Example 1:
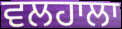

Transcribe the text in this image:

ਵਲਹਾਲਾ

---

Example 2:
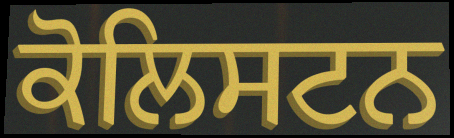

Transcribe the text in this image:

ਕੋਲਿਸਟਨ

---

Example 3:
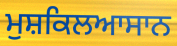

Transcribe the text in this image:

ਮੁਸ਼ਕਿਲਆਸਾਨ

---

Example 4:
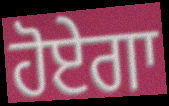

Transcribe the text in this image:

ਹੋਏਗਾ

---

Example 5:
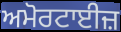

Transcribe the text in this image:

ਅਮੋਰਟਾਈਜ਼